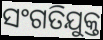
ସଂଗତିଯୁକ୍ତ